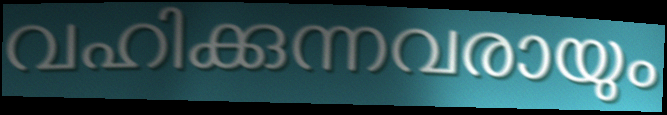
വഹിക്കുന്നവരായും